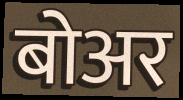
बोअर